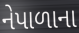
નેપાળાના